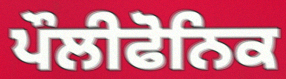
ਪੌਲੀਫੋਨਿਕ